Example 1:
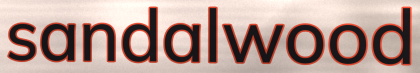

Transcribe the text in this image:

sandalwood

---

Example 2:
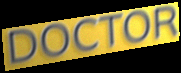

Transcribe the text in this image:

DOCTOR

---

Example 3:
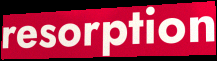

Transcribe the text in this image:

resorption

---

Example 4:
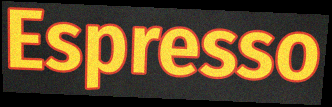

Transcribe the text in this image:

Espresso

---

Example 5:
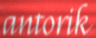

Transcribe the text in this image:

antorik